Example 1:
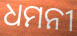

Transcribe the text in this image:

ଧମନୀ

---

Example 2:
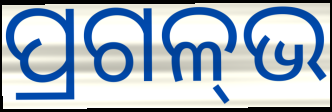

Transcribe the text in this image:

ପ୍ରଗଳ୍‌ଭ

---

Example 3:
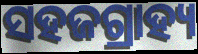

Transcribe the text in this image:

ସହଜଗ୍ରାହ୍ୟ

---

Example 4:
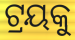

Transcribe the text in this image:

ଟ୍ରୟକୁ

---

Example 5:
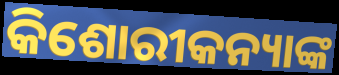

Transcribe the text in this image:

କିଶୋରୀକନ୍ୟାଙ୍କ